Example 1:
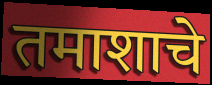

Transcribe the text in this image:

तमाशाचे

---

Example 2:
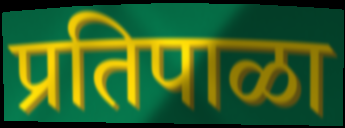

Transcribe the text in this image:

प्रतिपाळा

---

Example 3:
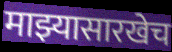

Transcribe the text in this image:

माझ्यासारखेच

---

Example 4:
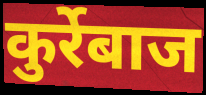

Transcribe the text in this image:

कुर्रेबाज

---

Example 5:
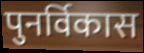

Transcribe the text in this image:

पुनर्विकास